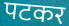
पटकर